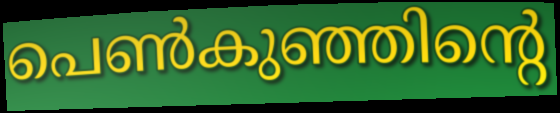
പെൺകുഞ്ഞിന്റെ